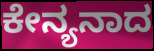
ಕೇನ್ಯನಾದ